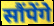
सौंपेंगे